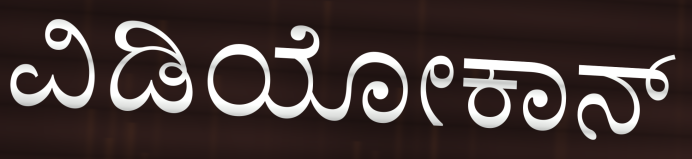
ವಿಡಿಯೋಕಾನ್